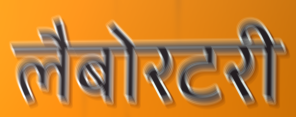
लैबोरटरी